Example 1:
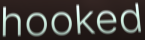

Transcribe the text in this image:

hooked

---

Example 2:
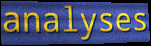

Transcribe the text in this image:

analyses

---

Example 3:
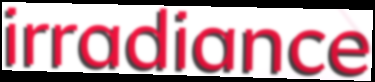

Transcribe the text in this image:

irradiance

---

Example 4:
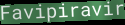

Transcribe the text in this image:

Favipiravir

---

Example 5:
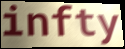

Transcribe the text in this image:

infty